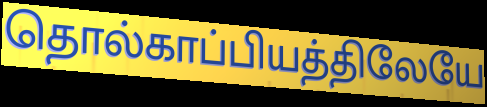
தொல்காப்பியத்திலேயே